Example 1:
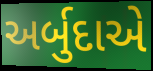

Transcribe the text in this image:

અર્બુદાએ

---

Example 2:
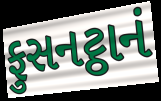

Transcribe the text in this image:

ફુસનટ્ઠાનં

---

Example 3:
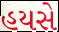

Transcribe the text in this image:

હયસે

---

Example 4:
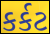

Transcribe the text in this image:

કર્કટ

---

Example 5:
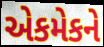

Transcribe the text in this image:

એકમેકને